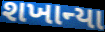
શખાન્યા